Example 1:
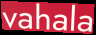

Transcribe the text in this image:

vahala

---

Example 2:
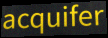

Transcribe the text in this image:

acquifer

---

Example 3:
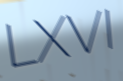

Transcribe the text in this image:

LXVI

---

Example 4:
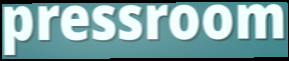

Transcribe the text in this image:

pressroom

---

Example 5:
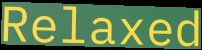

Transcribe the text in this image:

Relaxed